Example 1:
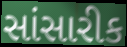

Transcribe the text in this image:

સાંસારીક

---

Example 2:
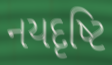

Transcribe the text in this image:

નયદૃષ્ટિ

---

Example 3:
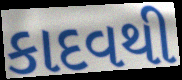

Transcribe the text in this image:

કાદવથી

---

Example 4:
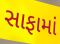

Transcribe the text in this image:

સાફામાં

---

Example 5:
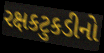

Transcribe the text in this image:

રક્ષકટુકડીનો